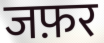
जफ़र